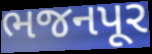
ભજનપૂર